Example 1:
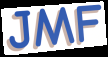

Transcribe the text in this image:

JMF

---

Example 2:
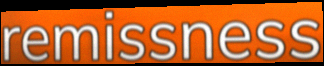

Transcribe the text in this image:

remissness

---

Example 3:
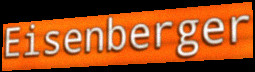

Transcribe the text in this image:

Eisenberger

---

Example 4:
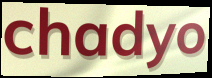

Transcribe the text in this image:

chadyo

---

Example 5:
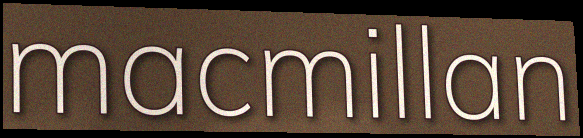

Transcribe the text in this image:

macmillan